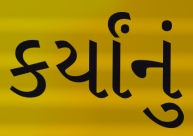
કર્યાંનું